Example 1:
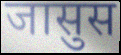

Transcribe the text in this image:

जासुस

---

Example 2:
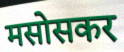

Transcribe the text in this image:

मसोसकर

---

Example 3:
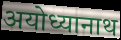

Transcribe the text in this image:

अयोध्यानाथ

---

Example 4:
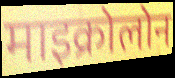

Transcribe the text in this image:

माइक्रोलोन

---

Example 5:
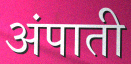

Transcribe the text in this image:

अंपाती